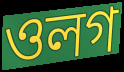
ওলগ